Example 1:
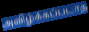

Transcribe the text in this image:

அவிழ்க்கப்படாத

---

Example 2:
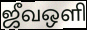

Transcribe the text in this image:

ஜீவஒளி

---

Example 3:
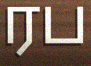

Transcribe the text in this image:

ரப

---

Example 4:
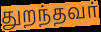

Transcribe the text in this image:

துறந்தவர்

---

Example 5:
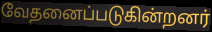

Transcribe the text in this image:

வேதனைப்படுகின்றனர்